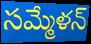
సమ్మేళన్